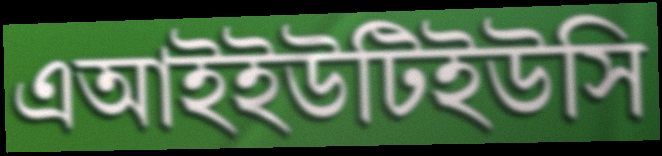
এআইইউটিইউসি